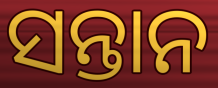
ସନ୍ତାନ